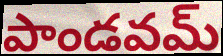
పాండవమ్